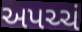
અપચ્ચં